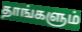
தாங்களும்